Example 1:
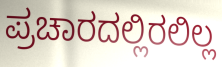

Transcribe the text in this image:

ಪ್ರಚಾರದಲ್ಲಿರಲಿಲ್ಲ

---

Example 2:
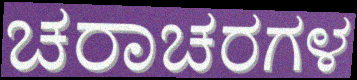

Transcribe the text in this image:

ಚರಾಚರಗಳ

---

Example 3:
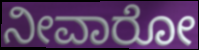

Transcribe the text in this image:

ನೀವಾರೋ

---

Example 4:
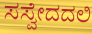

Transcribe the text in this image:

ಸಸ್ವೇದದಲಿ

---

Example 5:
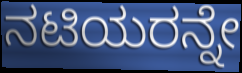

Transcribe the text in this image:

ನಟಿಯರನ್ನೇ